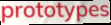
prototypes